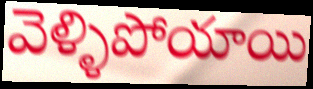
వెళ్ళిపోయాయి